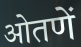
ओतणें